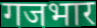
गजभार